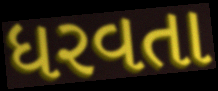
ધરવતા